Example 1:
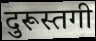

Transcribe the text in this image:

दुरूस्तगी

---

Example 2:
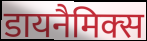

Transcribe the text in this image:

डायनैमिक्‍स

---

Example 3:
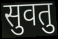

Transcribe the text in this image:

सुवतु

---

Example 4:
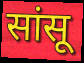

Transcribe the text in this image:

सांसू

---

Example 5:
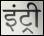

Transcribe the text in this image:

इंट्री